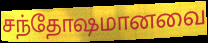
சந்தோஷமானவை